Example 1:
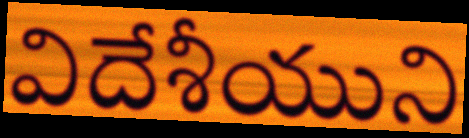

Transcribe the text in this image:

విదేశీయుని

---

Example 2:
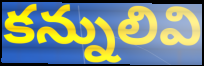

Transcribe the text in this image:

కన్నులివి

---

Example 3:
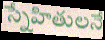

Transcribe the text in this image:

స్నేహితులనే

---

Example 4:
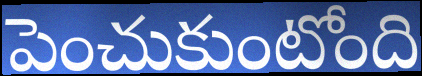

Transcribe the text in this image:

పెంచుకుంటోంది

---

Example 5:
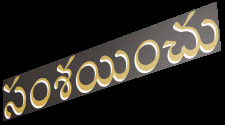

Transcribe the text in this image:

సంశయించు